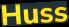
Huss